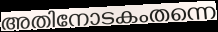
അതിനോടകംതന്നെ